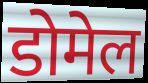
डोमेल